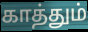
காத்தும்